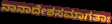
ನಾನಾದೇಶಸಮಾಗತಾಃ